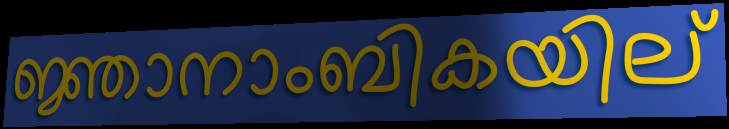
ജ്ഞാനാംബികയില്